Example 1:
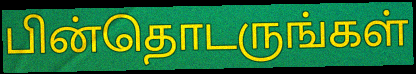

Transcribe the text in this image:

பின்தொடருங்கள்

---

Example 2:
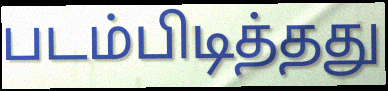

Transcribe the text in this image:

படம்பிடித்தது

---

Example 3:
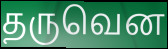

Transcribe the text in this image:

தருவென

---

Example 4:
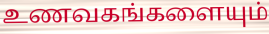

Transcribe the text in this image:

உணவகங்களையும்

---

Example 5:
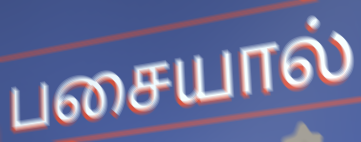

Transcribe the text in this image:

பசையால்